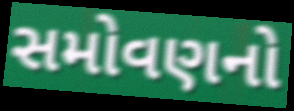
સમોવણનો